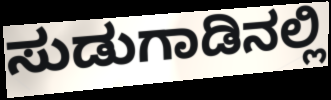
ಸುಡುಗಾಡಿನಲ್ಲಿ